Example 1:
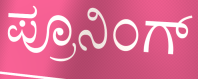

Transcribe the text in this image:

ಪ್ರೂನಿಂಗ್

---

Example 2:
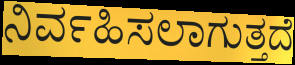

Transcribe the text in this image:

ನಿರ್ವಹಿಸಲಾಗುತ್ತದೆ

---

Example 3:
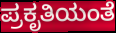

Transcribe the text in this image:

ಪ್ರಕೃತಿಯಂತೆ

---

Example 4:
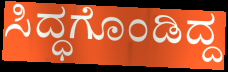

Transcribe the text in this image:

ಸಿದ್ಧಗೊಂಡಿದ್ದ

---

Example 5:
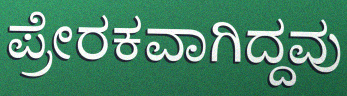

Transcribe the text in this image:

ಪ್ರೇರಕವಾಗಿದ್ದವು